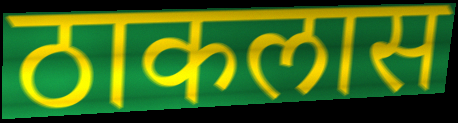
ठाकलास